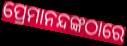
ପ୍ରେମାନନ୍ଦଙ୍କଠାରେ